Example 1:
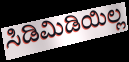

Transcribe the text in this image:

ಸಿಡಿಮಿಡಿಯಿಲ್ಲ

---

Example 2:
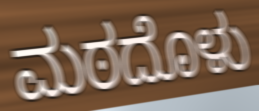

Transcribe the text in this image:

ಮಠದೊಳು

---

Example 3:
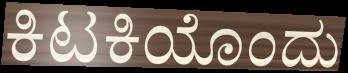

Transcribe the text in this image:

ಕಿಟಕಿಯೊಂದು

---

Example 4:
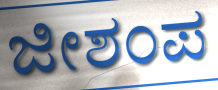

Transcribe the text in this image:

ಜೀಶಂಪ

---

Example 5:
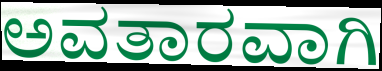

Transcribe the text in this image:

ಅವತಾರವಾಗಿ